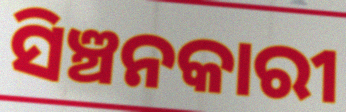
ସିଞ୍ଚନକାରୀ